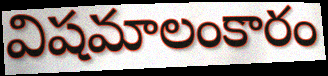
విషమాలంకారం